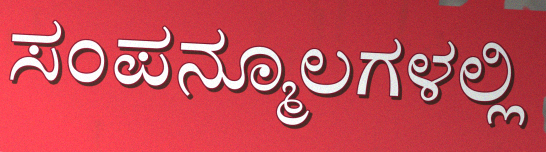
ಸಂಪನ್ಮೂಲಗಳಲ್ಲಿ